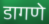
डागणे